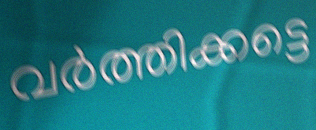
വർത്തിക്കട്ടെ